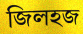
জিলহজ